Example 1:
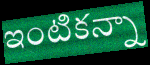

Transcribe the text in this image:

ఇంటికన్నా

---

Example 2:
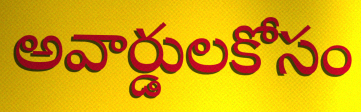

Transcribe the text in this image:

అవార్డులకోసం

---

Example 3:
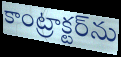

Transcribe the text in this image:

కాంట్రాక్టర్‌ను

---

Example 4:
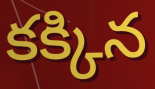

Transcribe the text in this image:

కక్కిన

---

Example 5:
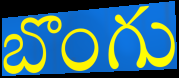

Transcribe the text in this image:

బొంగు